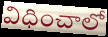
విధించాలో